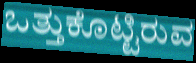
ಒತ್ತುಕೊಟ್ಟಿರುವ